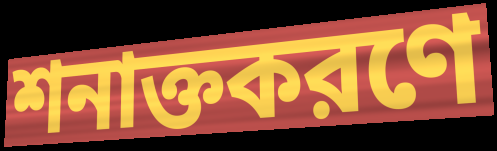
শনাক্তকরণে